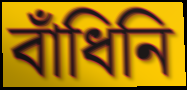
বাঁধিনি